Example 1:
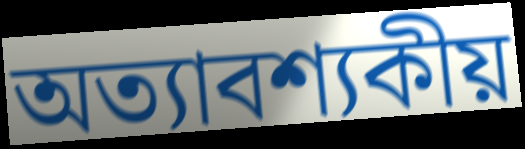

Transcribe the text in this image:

অত্যাবশ্যকীয়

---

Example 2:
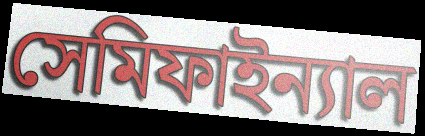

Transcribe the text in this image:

সেমিফাইন্যাল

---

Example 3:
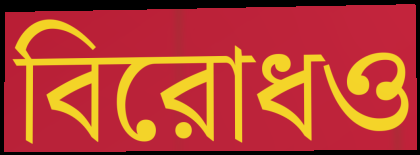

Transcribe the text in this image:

বিরোধও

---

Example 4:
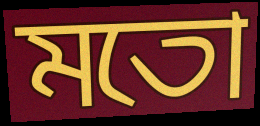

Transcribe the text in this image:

মতো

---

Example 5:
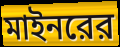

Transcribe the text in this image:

মাইনরের